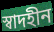
স্বাদহীন